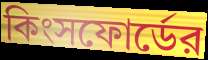
কিংসফোর্ডের